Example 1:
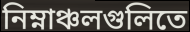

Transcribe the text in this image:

নিম্নাঞ্চলগুলিতে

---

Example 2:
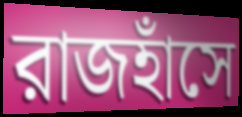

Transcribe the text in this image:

রাজহাঁসে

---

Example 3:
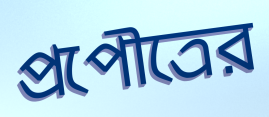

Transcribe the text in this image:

প্রপৌত্রের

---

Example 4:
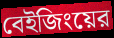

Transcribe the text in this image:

বেইজিংয়ের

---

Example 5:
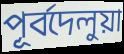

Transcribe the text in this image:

পূর্বদেলুয়া